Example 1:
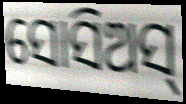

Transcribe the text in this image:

ସୋସିଅସ୍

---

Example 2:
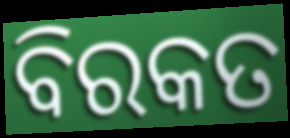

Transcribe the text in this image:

ବିରକତ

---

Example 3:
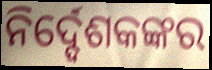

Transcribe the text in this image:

ନିର୍ଦ୍ଦେଶକଙ୍କର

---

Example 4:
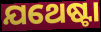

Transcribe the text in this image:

ଯଥେଷ୍ଟା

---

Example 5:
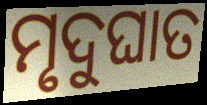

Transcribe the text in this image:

ମୃଦୁଘାତ